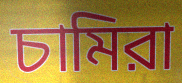
চামিরা